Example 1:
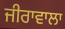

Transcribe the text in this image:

ਜੀਰਾਵਾਲਾ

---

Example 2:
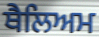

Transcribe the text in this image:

ਥੈਲਿਅਮ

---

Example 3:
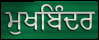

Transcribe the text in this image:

ਮੁਖਬਿੰਦਰ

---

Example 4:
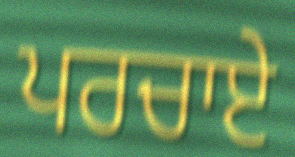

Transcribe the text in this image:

ਪਰਚਾਏ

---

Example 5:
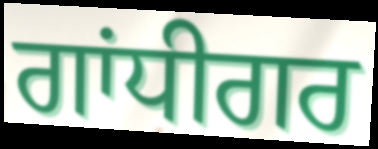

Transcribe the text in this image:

ਗਾਂਧੀਗਰ